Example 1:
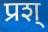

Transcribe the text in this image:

प्रश्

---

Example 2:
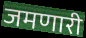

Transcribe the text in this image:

जमणारी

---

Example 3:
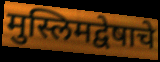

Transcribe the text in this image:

मुस्लिमद्वेषाचे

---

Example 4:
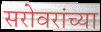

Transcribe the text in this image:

सरोवरांच्या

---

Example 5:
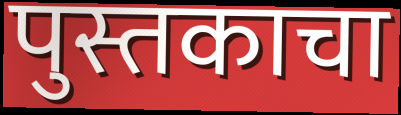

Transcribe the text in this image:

पुस्तकाचा